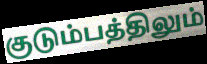
குடும்பத்திலும்